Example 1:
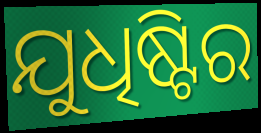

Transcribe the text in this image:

ଯୁଧିଷ୍ଟିର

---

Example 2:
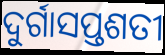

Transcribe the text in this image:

ଦୁର୍ଗାସପ୍ତଶତୀ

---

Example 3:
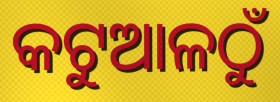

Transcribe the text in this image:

କଟୁଆଳଠୁଁ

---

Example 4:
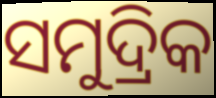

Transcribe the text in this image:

ସମୁଦ୍ରିକ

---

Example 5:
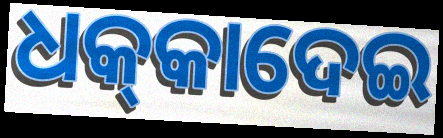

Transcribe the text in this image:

ଧକ୍‌କାଦେଇ